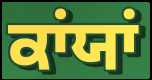
ਕਾਂਯਾਂ